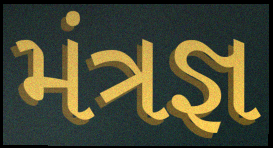
મંત્રજ્ઞ